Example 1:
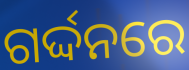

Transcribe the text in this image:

ଗର୍ଦ୍ଦନରେ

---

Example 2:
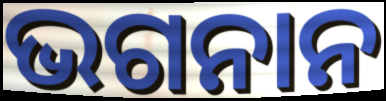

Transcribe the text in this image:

ଭଗନାନ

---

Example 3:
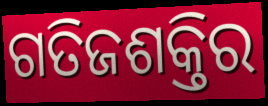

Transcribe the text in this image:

ଗତିଜଶକ୍ତିର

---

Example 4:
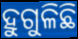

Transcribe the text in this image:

ହୁଗୁଳିଛି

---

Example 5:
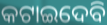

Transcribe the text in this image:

କଟାଇଦେବି